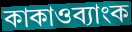
কাকাওব্যাংক